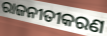
ରାଜନୀତୀକରଣ